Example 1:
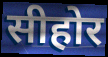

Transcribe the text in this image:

सीहोर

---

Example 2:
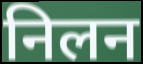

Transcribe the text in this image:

निलन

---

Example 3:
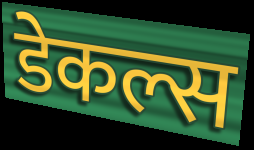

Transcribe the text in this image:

डेकल्स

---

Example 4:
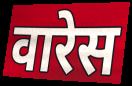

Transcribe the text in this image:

वारेस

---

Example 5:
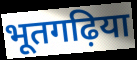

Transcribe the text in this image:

भूतगढ़िया